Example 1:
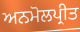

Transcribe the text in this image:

ਅਨਮੋਲਪ੍ਰੀਤ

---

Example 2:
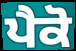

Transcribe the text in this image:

ਪੈਕੋ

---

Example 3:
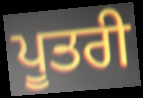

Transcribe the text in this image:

ਪੂਤਰੀ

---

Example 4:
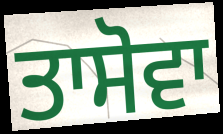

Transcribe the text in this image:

ਤਾਸੋਵਾ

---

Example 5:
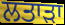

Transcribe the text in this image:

ਲਤਾੜਾ